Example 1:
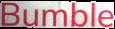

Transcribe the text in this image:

Bumble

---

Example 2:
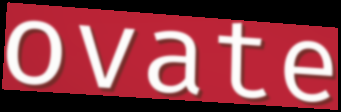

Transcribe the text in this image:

ovate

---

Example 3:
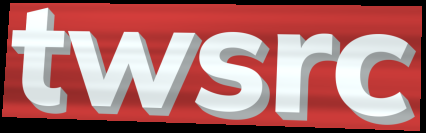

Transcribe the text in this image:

twsrc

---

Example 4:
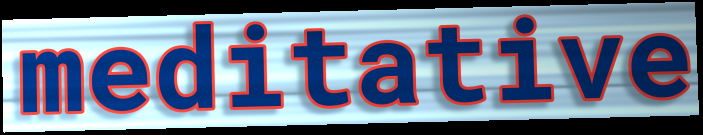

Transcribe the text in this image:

meditative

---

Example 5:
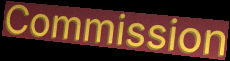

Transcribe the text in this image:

Commission